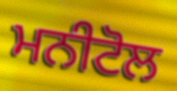
ਮਨੀਟੋਲ